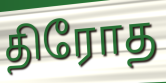
திரோத